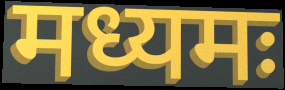
मध्यमः